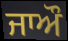
ਜਾਔ